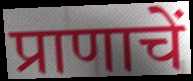
प्राणाचें